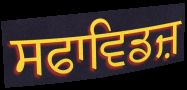
ਸਫਾਵਿਡਜ਼